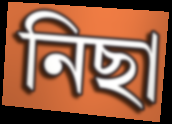
নিছা